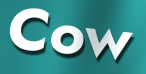
Cow